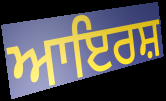
ਆਇਰਸ਼